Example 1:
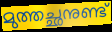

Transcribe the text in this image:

മുത്തച്ഛനുണ്ട്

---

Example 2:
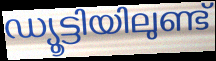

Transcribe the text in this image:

ഡ്യൂട്ടിയിലുണ്ട്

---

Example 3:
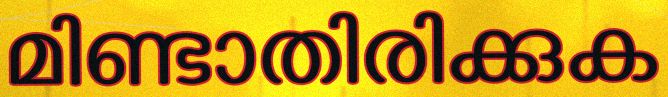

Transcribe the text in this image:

മിണ്ടാതിരിക്കുക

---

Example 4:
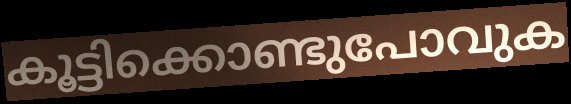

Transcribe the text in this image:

കൂട്ടിക്കൊണ്ടുപോവുക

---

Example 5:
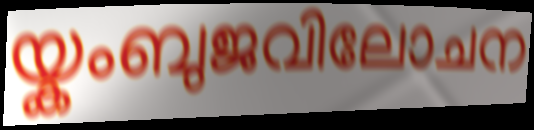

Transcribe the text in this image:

യ്കംബുജവിലോചന